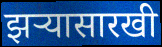
झर्‍यासारखी